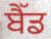
ਬੈੱਡ